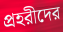
প্রহরীদের